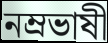
নম্রভাষী